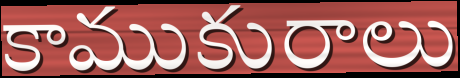
కాముకురాలు